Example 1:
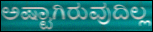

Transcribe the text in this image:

ಅಷ್ಟಾಗಿರುವುದಿಲ್ಲ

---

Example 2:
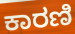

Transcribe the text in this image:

ಕಾರಣಿ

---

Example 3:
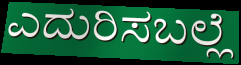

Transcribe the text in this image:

ಎದುರಿಸಬಲ್ಲೆ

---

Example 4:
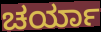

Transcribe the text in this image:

ಚರ್ಯಾ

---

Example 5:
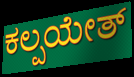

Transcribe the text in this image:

ಕಲ್ಪಯೇತ್